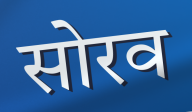
सोरव